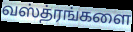
வஸ்த்ரங்களை